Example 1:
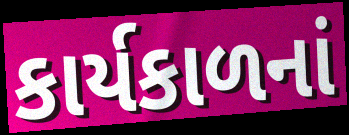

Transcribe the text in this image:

કાર્યકાળનાં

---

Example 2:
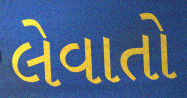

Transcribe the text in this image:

લેવાતો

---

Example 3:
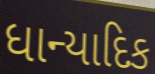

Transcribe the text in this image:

ધાન્યાદિક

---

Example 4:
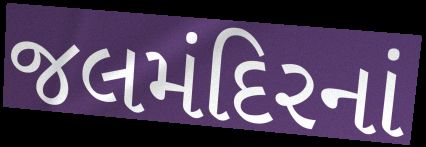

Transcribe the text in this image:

જલમંદિરનાં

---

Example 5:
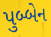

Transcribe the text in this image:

પુબ્બેન